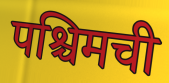
पश्चिमची